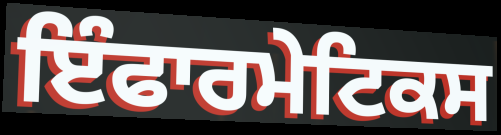
ਇੰਫਾਰਮੇਟਿਕਸ